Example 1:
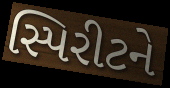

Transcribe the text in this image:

સ્પિરીટને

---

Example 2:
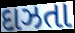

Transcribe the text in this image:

દાઝતા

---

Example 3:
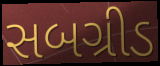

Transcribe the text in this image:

સબગ્રીડ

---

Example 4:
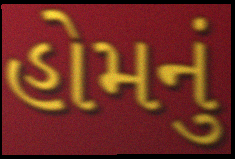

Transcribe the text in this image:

હોમનું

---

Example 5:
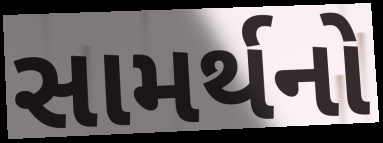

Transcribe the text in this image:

સામર્થનો